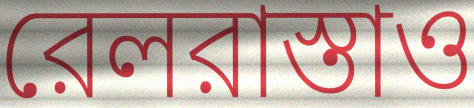
রেলরাস্তাও